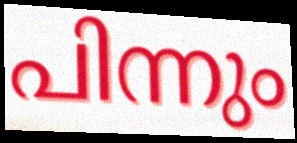
പിന്നും